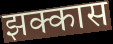
झक्कास